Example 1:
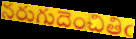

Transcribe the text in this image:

నరుగుదెంచితిఁ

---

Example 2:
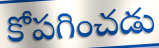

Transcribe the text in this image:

కోపగించడు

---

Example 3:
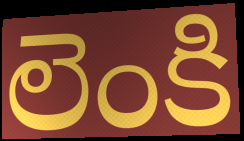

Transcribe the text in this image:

లెంకి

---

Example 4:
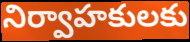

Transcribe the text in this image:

నిర్వాహకులకు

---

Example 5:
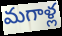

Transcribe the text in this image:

మగాళ్ల